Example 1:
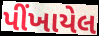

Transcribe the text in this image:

પીંખાયેલ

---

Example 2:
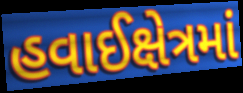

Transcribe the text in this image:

હવાઈક્ષેત્રમાં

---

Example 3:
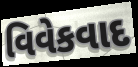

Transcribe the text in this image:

વિવેકવાદ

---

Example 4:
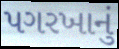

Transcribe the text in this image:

પગરખાનું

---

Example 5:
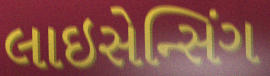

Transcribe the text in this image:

લાઇસેન્સિંગ